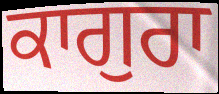
ਕਾਗੁਰਾ